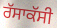
ਰੱਸਾਕੱਸੀ